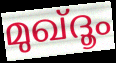
മുഖ്ദൂം